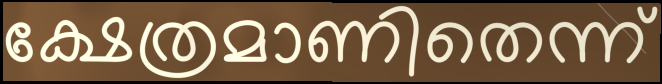
ക്ഷേത്രമാണിതെന്ന്